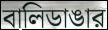
বালিডাঙার